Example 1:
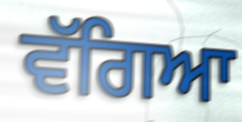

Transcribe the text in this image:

ਵੱਗਿਆ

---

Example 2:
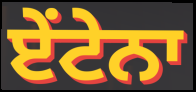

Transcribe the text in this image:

ਏਂਟੇਨਾ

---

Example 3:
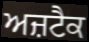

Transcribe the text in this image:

ਅਜ਼ਟੈਕ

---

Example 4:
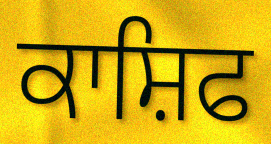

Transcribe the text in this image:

ਕਾਸ਼ਿਫ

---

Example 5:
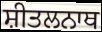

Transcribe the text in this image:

ਸ਼ੀਤਲਨਾਥ